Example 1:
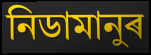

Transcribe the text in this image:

নিডামানুৰ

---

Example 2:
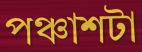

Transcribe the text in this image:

পঞ্চাশটা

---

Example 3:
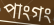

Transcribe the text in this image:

পাংগং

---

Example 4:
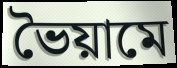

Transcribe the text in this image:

ভৈয়ামে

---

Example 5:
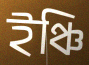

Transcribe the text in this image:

ইঞ্চি